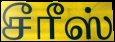
சீரீஸ்